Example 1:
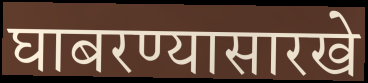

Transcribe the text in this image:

घाबरण्यासारखे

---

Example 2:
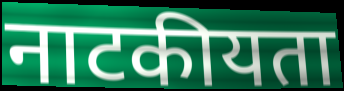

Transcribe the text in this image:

नाटकीयता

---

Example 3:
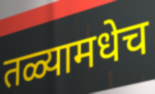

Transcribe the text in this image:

तळ्यामधेच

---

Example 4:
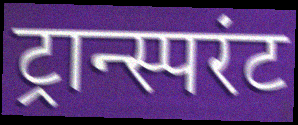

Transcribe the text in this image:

ट्रान्स्परंट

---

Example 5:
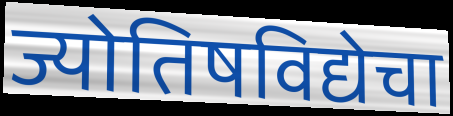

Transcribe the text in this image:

ज्योतिषविद्येचा